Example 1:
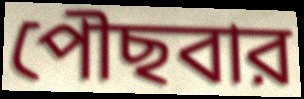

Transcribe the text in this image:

পৌছবার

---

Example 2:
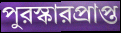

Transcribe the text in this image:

পুরস্কারপ্রাপ্ত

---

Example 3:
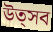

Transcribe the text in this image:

উত্সব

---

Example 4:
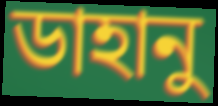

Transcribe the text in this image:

ডাহানু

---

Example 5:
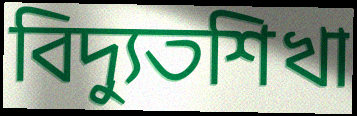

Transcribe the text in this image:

বিদ্যুতশিখা